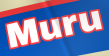
Muru